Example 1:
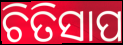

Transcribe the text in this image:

ଚିତିସାପ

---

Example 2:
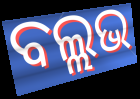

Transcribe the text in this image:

ବଲ୍ଲଭ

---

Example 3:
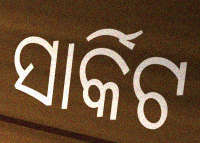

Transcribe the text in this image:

ସାର୍କିଟ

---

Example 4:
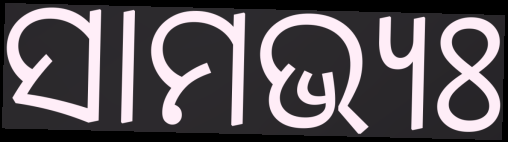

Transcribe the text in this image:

ସାମଭ୍ୟଃ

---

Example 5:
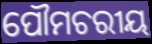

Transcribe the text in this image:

ପୌମଚରୀୟ